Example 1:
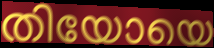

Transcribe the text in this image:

തിയോയെ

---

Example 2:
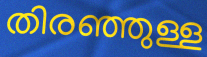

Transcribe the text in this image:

തിരഞ്ഞുള്ള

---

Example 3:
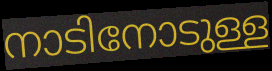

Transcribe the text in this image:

നാടിനോടുള്ള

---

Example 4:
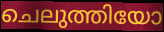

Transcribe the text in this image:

ചെലുത്തിയോ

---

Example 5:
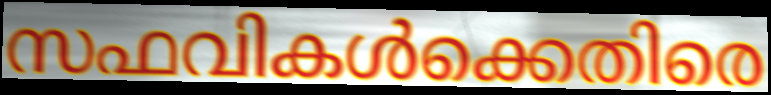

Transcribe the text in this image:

സഫവികൾക്കെതിരെ